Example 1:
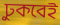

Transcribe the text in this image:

ঢুকবেই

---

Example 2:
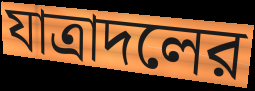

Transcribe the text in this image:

যাত্রাদলের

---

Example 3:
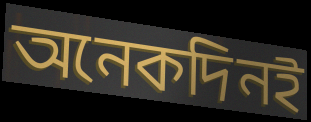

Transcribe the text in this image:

অনেকদিনই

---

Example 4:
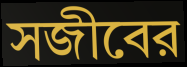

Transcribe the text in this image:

সজীবের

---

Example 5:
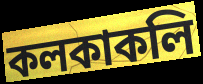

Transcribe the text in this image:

কলকাকলি